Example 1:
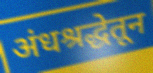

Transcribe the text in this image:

अंधश्रद्धेतून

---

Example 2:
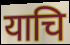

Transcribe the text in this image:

याचि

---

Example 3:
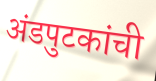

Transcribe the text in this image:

अंडपुटकांची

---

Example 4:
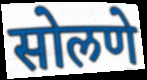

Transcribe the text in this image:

सोलणे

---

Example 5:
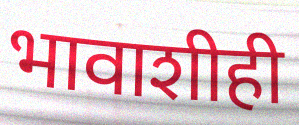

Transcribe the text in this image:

भावाशीही